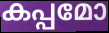
കപ്പമോ